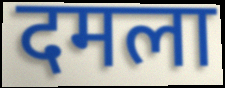
दमला